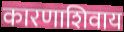
कारणाशिवाय